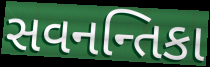
સવનન્તિકા